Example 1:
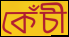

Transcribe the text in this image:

কেঁচী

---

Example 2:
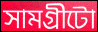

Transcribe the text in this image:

সামগ্ৰীটো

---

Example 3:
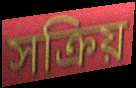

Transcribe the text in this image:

সক্ৰিয়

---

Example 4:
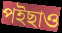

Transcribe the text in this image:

পইছাও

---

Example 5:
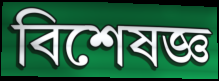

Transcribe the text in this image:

বিশেষজ্ঞ